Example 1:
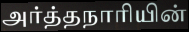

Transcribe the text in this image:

அர்த்தநாரியின்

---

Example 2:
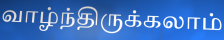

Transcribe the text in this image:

வாழ்ந்திருக்கலாம்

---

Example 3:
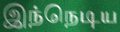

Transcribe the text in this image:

இந்நெடிய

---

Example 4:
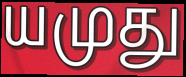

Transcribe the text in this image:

யமுது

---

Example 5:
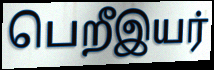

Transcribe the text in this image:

பெறீஇயர்